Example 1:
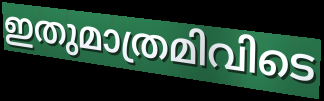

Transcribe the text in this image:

ഇതുമാത്രമിവിടെ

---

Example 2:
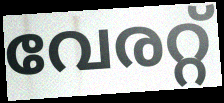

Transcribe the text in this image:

വേരറ്റ്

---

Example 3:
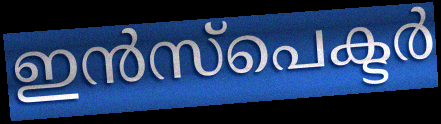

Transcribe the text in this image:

ഇൻസ്പെക്ടർ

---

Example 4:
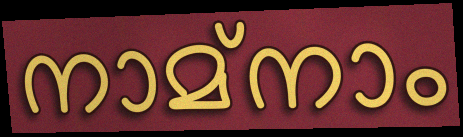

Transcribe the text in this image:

നാമ്നാം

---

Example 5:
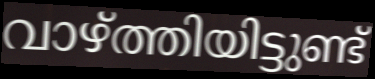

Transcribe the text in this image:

വാഴ്ത്തിയിട്ടുണ്ട്